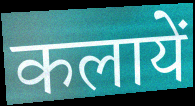
कलायें